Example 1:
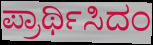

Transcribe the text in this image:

ಪ್ರಾರ್ಥಿಸಿದಂ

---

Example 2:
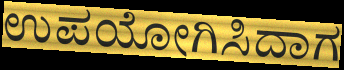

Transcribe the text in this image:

ಉಪಯೋಗಿಸಿದಾಗ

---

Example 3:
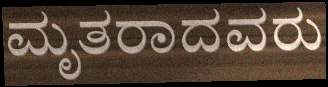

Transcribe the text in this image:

ಮೃತರಾದವರು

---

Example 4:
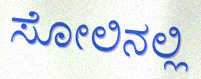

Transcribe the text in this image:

ಸೋಲಿನಲ್ಲಿ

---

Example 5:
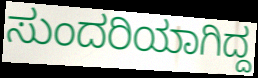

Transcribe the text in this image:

ಸುಂದರಿಯಾಗಿದ್ದ